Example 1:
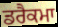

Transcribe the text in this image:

ਡਰੈਕਮਾ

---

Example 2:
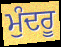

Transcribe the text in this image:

ਮੁੰਦਰੂ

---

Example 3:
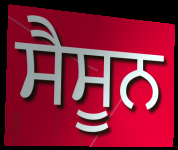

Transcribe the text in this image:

ਸੈਸੂਨ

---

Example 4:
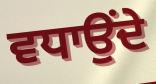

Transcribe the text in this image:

ਵਧਾਉਂਦੇ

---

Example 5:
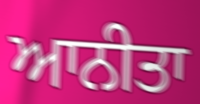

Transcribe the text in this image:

ਆਨੀਤਾ